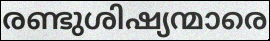
രണ്ടുശിഷ്യന്മാരെ